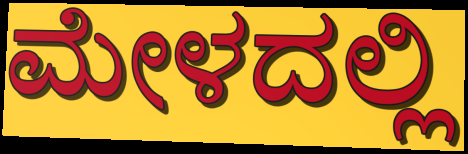
ಮೇಳದಲ್ಲಿ